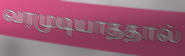
வரமுடியாததால்